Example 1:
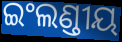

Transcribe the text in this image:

ଇଂଲଣ୍ଡୀୟ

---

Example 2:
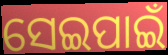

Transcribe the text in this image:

ସେଇପାଇଁ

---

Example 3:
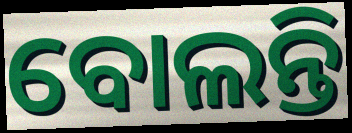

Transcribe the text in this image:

ବୋଲନ୍ତି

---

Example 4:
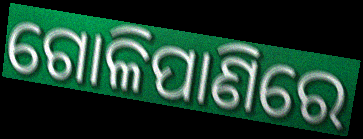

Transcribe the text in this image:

ଗୋଳିପାଣିରେ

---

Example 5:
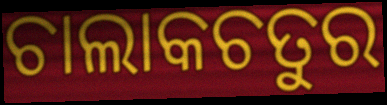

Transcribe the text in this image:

ଚାଲାକଚତୁର